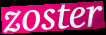
zoster